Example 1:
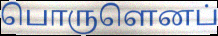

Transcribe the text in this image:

பொருளெனப்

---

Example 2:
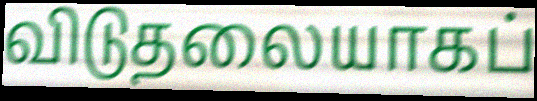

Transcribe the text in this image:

விடுதலையாகப்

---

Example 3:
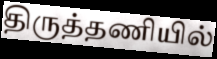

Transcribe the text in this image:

திருத்தணியில்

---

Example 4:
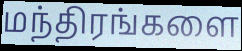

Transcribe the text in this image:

மந்திரங்களை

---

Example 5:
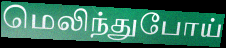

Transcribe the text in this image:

மெலிந்துபோய்